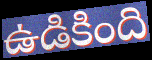
ఉడికింది